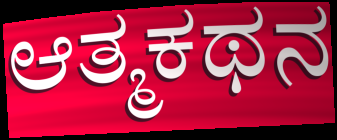
ಆತ್ಮಕಥನ